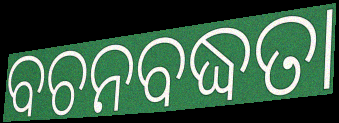
ବଚନବଦ୍ଧତା